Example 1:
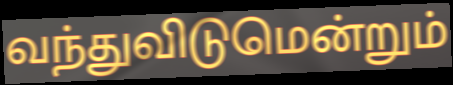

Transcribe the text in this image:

வந்துவிடுமென்றும்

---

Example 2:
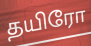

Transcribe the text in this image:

தயிரோ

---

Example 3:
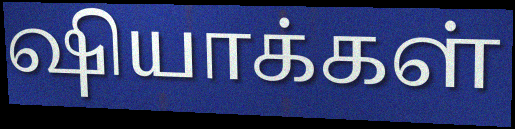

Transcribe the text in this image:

ஷியாக்கள்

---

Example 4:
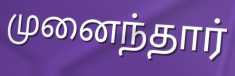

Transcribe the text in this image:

முனைந்தார்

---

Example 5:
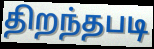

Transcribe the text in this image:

திறந்தபடி